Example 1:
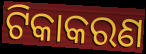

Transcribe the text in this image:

ଟିକାକରଣ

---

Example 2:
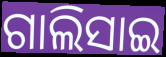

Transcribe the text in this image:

ଗାଲିସାଇ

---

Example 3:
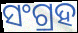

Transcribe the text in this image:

ସଂଗ୍ରହ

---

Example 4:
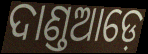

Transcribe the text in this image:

ଦାଣ୍ଡଆଡ଼େ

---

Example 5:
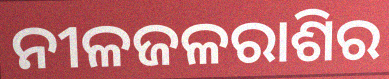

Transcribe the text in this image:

ନୀଳଜଳରାଶିର